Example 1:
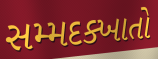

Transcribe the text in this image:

સમ્મદક્ખાતો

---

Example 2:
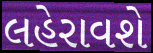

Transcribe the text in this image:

લહેરાવશે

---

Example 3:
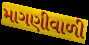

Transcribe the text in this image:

માગણીવાળી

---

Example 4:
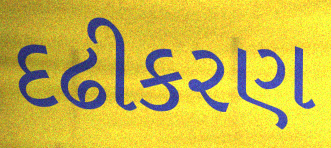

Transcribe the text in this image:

દઢીકરણ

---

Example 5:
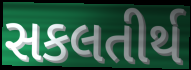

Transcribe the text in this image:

સકલતીર્થ